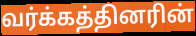
வர்க்கத்தினரின்